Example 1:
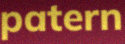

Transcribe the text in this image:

patern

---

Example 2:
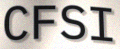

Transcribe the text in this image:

CFSI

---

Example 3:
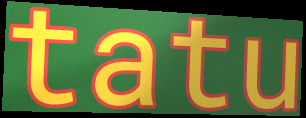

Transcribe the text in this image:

tatu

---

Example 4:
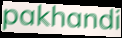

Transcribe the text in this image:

pakhandi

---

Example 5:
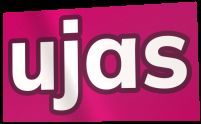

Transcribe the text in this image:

ujas